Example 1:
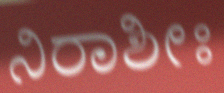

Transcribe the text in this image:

ನಿರಾಶೀಃ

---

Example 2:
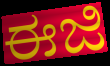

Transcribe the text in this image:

ಈಜಿ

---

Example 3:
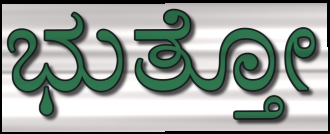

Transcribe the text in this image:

ಭುತ್ತೋ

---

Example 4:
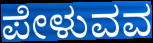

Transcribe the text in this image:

ಪೇಳುವವ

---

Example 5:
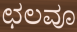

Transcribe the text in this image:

ಛಲವೂ